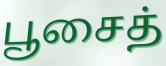
பூசைத்